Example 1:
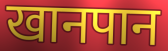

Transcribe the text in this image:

खानपान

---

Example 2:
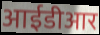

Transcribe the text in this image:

आईडीआर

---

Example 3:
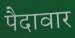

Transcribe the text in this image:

पैदावार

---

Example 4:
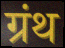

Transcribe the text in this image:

ग्रंथ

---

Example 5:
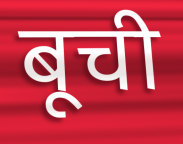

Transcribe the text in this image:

बूची